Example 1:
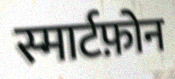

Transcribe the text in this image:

स्‍मार्टफ़ोन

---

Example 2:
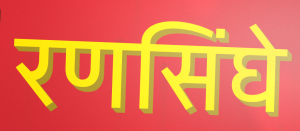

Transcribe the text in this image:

रणसिंघे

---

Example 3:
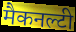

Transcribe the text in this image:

मैकनल्टी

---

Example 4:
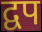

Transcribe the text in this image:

द्वप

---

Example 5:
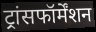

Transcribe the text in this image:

ट्रांसफॉर्मेंशन